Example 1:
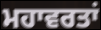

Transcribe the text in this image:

ਮਹਾਵਰਤਾਂ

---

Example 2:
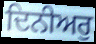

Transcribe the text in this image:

ਦਿਨੀਅਰੁ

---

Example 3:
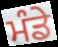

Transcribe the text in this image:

ਮੰਡੇ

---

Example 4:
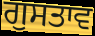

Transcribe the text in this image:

ਗੁਸਤਾਵ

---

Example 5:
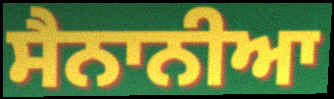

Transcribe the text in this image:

ਸੈਨਾਨੀਆ